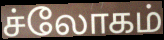
ச்லோகம்